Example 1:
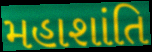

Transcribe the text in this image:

મહાશાંતિ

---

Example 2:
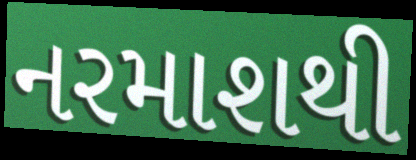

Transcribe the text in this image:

નરમાશથી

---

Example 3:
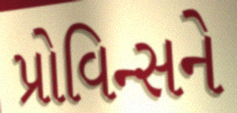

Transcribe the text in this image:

પ્રોવિન્સને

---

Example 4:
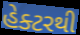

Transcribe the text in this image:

હેક્ટરથી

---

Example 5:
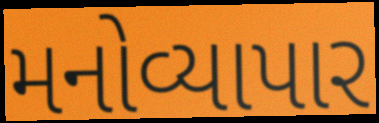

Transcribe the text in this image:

મનોવ્યાપાર